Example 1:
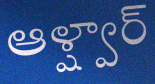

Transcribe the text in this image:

ఆళ్ష్వార్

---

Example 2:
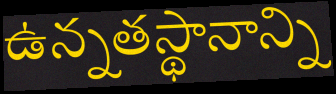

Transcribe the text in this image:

ఉన్నతస్థానాన్ని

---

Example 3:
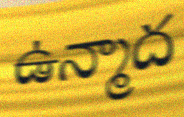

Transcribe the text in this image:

ఉన్మాద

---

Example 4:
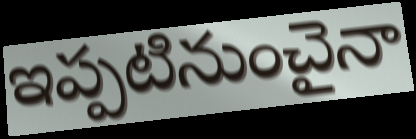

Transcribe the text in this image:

ఇప్పటినుంచైనా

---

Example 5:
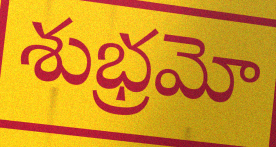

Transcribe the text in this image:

శుభ్రమో